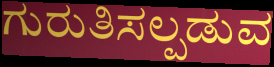
ಗುರುತಿಸಲ್ಪಡುವ